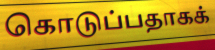
கொடுப்பதாகக்